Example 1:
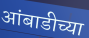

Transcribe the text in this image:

आंबाडीच्या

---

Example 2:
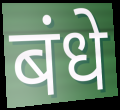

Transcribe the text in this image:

बंधे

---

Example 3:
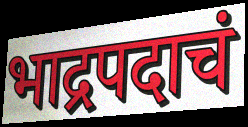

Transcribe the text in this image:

भाद्रपदाचं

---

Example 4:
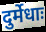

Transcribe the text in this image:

दुर्मेधाः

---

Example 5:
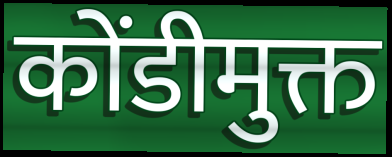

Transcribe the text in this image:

कोंडीमुक्त